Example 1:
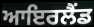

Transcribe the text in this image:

ਆਇਰਲੈੰਡ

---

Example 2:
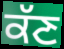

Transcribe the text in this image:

ਕੱਣ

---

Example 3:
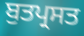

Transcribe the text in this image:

ਬੁਤਪ੍ਰਸਤ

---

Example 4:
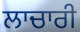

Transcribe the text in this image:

ਲਾਚਾਰੀ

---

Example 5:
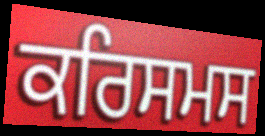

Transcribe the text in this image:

ਕਰਿਸਮਸ